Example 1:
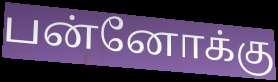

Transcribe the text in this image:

பன்னோக்கு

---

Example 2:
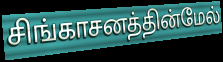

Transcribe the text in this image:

சிங்காசனத்தின்மேல்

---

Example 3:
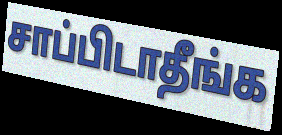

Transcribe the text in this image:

சாப்பிடாதீங்க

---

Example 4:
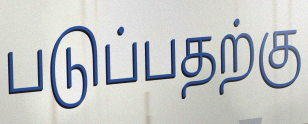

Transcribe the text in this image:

படுப்பதற்கு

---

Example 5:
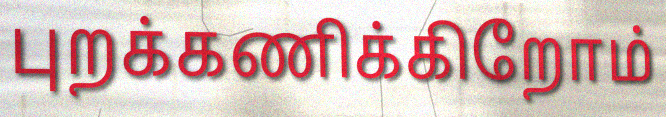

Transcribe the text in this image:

புறக்கணிக்கிறோம்